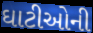
ઘાટીઓની